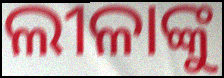
ଲୀଳାଙ୍କୁ